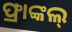
ଫ୍ରାଙ୍କଲ୍